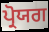
ਪ੍ਰੋਯਗ